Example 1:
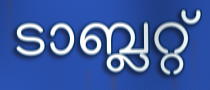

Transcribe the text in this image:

ടാബ്ലറ്റ്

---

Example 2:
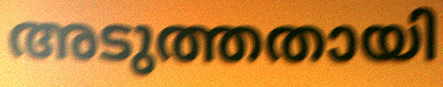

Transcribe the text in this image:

അടുത്തതായി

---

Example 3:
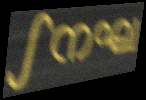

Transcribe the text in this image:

ഽനഘ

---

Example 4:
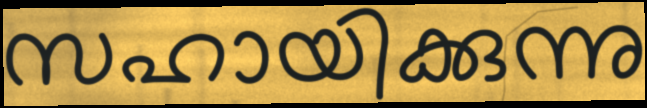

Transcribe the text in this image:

സഹായിക്കുന്നു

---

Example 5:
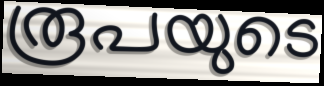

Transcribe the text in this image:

രൂപയുടെ